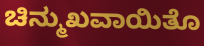
ಚಿನ್ಮುಖವಾಯಿತೊ